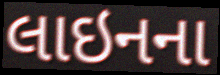
લાઇનના